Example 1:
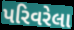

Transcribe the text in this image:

પરિવરેલા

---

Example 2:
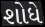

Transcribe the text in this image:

શોધે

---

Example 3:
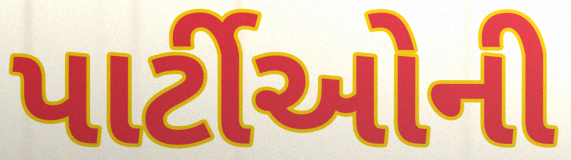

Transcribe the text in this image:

પાર્ટીઓની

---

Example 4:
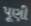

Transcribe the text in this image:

પૂણી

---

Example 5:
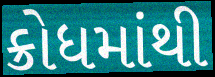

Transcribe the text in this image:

ક્રોધમાંથી